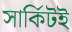
সার্কিটই